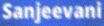
Sanjeevani